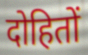
दोहितों